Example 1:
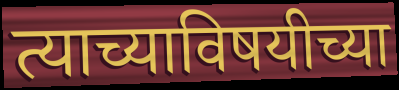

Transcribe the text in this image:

त्याच्याविषयीच्या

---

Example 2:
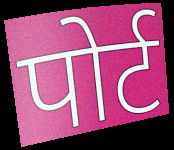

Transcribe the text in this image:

पोर्ट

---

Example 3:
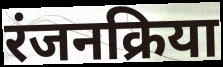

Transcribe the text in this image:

रंजनक्रिया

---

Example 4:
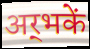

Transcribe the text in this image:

अर्भकें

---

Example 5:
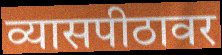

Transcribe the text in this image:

व्यासपीठावर